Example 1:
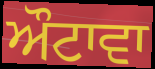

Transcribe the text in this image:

ਔਟਾਵਾ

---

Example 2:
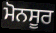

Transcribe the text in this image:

ਮੋਨਸੂਰ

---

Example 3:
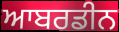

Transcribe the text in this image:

ਆਬਰਡੀਨ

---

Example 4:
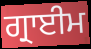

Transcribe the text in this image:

ਗ੍ਰਾਈਮ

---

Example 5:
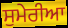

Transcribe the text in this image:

ਸੁਮੇਰੀਆ